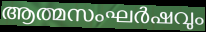
ആത്മസംഘർഷവും